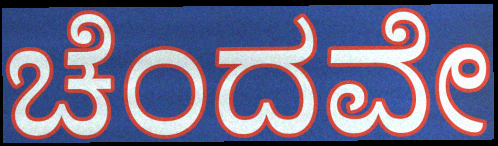
ಚೆಂದವೇ